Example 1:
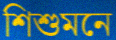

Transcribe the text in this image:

শিশুমনে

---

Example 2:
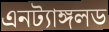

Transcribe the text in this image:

এনট্যাঙ্গলড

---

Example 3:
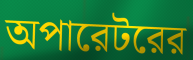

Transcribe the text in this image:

অপারেটরের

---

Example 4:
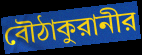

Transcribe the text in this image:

বৌঠাকুরানীর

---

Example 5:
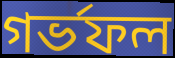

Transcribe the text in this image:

গর্ভফল